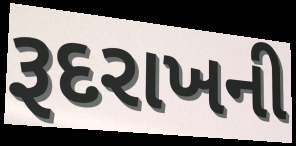
રૂદરાખની